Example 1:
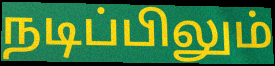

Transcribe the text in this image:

நடிப்பிலும்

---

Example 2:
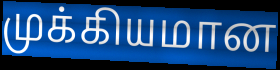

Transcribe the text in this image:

முக்கியமான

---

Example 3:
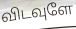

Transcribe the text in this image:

விடவுளே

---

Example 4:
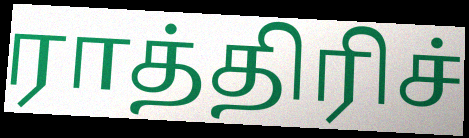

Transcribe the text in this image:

ராத்திரிச்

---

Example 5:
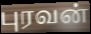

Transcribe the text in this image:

புரவன்